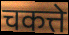
चकत्ते